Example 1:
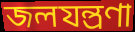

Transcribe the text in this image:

জলযন্ত্রণা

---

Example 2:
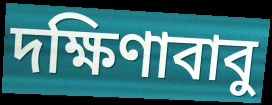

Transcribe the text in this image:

দক্ষিণাবাবু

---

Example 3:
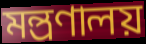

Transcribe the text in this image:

মন্ত্রণালয়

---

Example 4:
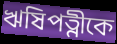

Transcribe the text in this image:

ঋষিপত্নীকে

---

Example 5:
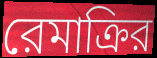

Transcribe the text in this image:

রেমাক্রির